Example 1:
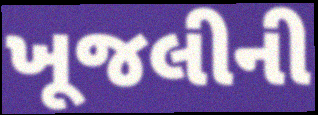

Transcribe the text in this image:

ખૂજલીની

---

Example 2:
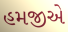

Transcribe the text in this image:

હમજીએ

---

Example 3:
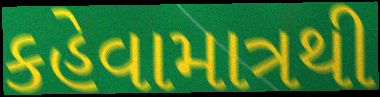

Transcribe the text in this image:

કહેવામાત્રથી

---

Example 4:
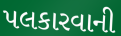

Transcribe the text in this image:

પલકારવાની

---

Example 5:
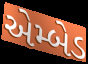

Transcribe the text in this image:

એમ્બેડ